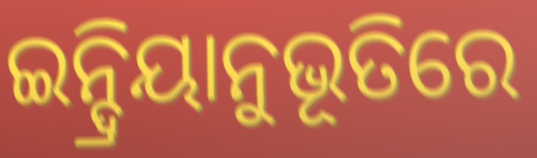
ଇନ୍ଦ୍ରିୟାନୁଭୂତିରେ